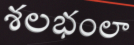
శలభంలా